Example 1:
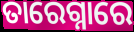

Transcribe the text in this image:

ତାରେଗ୍ନାରେ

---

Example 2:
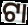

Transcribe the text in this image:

ଟା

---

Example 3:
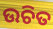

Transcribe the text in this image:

ଉଚିତ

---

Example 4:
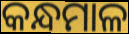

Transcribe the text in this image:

କନ୍ଧମାଳ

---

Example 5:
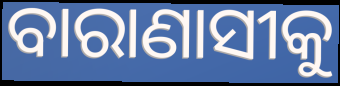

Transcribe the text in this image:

ବାରାଣାସୀକୁ